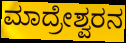
ಮಾದ್ರೇಶ್ವರನ